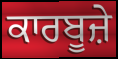
ਕਾਰਬੂਜ਼ੇ